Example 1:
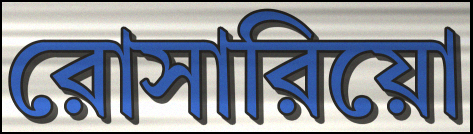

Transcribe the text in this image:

রোসারিয়ো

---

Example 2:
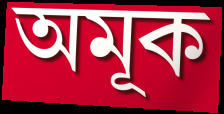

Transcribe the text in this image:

অমূক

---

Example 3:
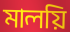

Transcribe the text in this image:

মালয়ি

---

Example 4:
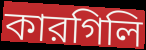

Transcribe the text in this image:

কারগিলি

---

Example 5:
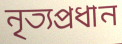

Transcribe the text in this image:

নৃত্যপ্রধান